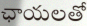
ఛాయలతో